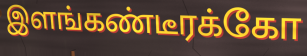
இளங்கண்டீரக்கோ